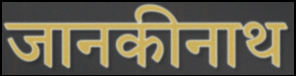
जानकीनाथ